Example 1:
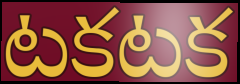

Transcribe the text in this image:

టకటక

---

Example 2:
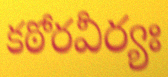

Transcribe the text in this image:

కఠోరవీర్యః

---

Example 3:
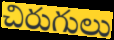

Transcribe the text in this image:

చిరుగులు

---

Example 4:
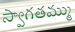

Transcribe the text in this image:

స్వాగతమ్ము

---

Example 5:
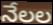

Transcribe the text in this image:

నేలల